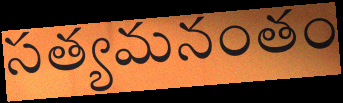
సత్యమనంతం